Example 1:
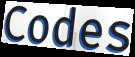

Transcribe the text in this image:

Codes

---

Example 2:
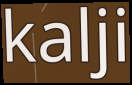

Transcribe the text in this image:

kalji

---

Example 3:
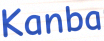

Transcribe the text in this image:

Kanba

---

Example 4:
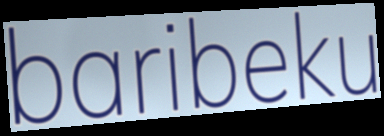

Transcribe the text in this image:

baribeku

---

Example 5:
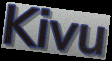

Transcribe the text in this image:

Kivu